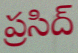
ప్రసిద్